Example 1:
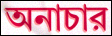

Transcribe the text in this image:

অনাচার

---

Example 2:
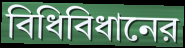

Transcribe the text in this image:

বিধিবিধানের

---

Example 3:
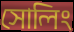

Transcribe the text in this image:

সোলিং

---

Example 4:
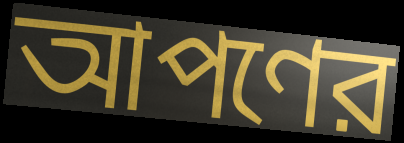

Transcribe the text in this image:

আপণের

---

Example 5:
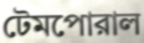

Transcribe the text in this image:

টেমপোরাল